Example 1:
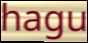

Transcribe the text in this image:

hagu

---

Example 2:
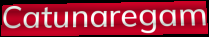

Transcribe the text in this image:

Catunaregam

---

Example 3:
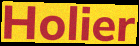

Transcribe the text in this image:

Holier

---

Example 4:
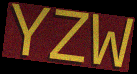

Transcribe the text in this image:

YZW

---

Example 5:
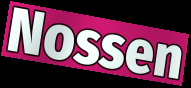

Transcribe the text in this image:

Nossen